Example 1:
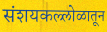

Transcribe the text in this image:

संशयकल्लोळातून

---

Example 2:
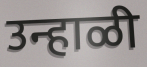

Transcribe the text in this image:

उन्हाळी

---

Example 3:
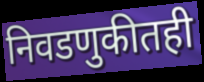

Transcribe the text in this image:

निवडणुकीतही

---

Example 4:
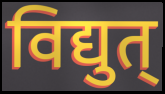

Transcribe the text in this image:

विद्युत्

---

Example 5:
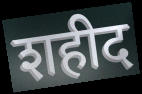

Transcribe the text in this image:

शहीद